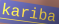
kariba